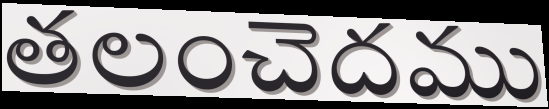
తలంచెదము